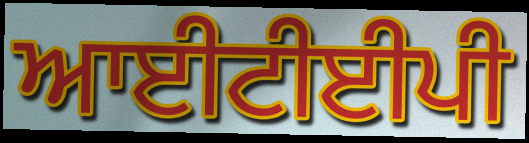
ਆਈਟੀਈਪੀ